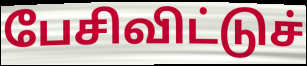
பேசிவிட்டுச்